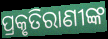
ପ୍ରକୃତିରାଣୀଙ୍କ